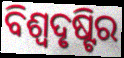
ବିଶ୍ୱଦୃଷ୍ଟିର